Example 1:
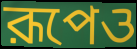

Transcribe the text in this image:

রূপেও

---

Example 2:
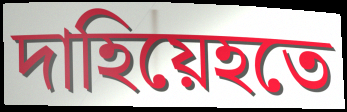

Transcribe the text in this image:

দাহিয়েহতে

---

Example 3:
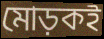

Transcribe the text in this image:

মোড়কই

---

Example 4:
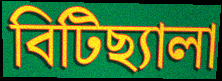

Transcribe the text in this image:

বিটিছ্যালা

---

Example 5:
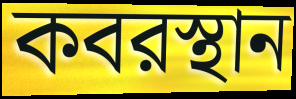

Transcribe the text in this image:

কবরস্থান